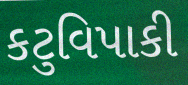
કટુવિપાકી